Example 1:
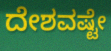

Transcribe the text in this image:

ದೇಶವಷ್ಟೇ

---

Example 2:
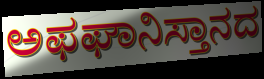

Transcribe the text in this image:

ಅಫಘಾನಿಸ್ತಾನದ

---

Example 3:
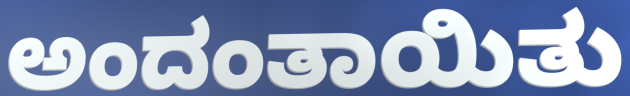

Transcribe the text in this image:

ಅಂದಂತಾಯಿತು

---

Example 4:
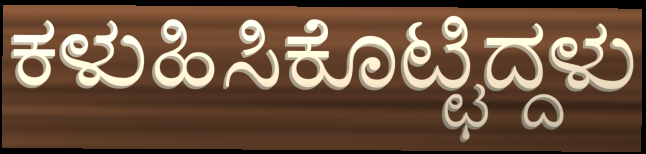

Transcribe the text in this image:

ಕಳುಹಿಸಿಕೊಟ್ಟಿದ್ದಳು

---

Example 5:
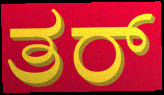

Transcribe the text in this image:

ತರ್